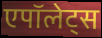
एपॉलेट्स